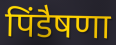
पिंडैषणा